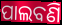
ପାଲବଣି